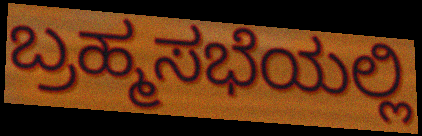
ಬ್ರಹ್ಮಸಭೆಯಲ್ಲಿ